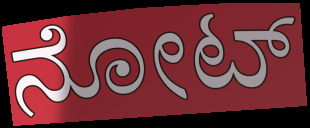
ನೋಟ್